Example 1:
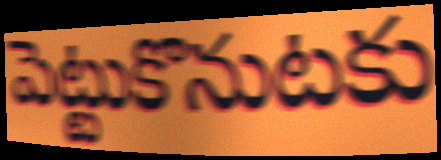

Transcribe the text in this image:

పెట్టుకొనుటకు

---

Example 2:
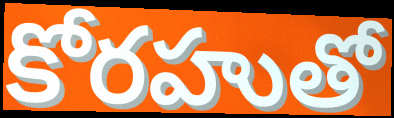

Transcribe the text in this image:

కోరహుతో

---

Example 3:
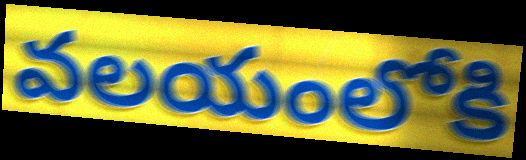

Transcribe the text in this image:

వలయంలోకి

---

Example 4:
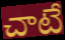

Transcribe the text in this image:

చాటే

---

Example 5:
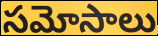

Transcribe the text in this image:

సమోసాలు